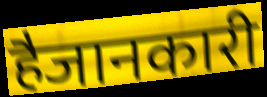
हैजानकारी